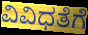
ವಿವಿಧತೆಗೆ